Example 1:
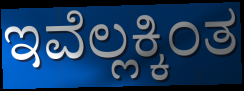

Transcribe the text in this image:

ಇವೆಲ್ಲಕ್ಕಿಂತ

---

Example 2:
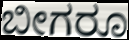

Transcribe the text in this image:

ಬೀಗರೂ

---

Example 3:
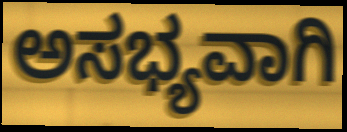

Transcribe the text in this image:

ಅಸಭ್ಯವಾಗಿ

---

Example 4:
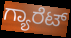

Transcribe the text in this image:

ಗ್ಯಾರೆಟ್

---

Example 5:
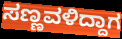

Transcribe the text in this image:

ಸಣ್ಣವಳಿದ್ದಾಗ